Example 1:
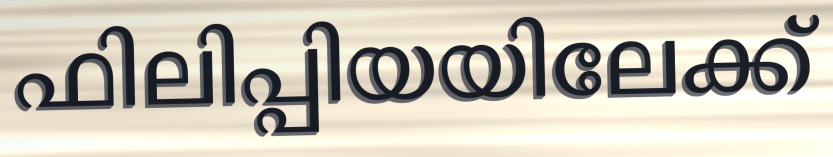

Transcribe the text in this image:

ഫിലിപ്പിയയിലേക്ക്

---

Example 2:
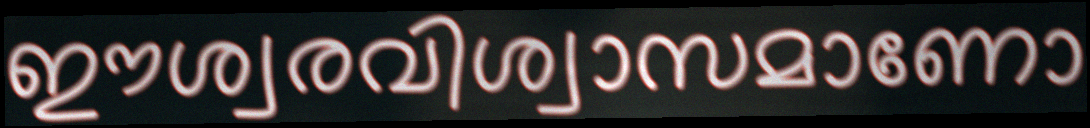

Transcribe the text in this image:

ഈശ്വരവിശ്വാസമാണോ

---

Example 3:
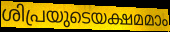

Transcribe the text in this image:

ശിപ്രയുടെയക്ഷമമാം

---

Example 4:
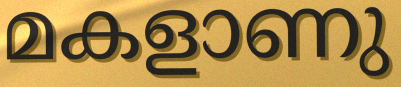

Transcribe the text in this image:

മകളാണു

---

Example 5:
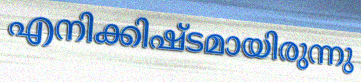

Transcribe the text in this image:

എനിക്കിഷ്ടമായിരുന്നു